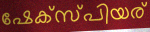
ഷേക്സ്പിയര്